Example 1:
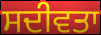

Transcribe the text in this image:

ਸਦੀਵਤਾ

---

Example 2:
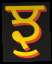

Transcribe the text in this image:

ਝੁ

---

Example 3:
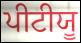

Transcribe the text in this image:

ਪੀਟੀਯੂ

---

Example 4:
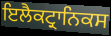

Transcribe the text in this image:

ਇਲੈਕਟ੍ਰਾਨਿਕਸ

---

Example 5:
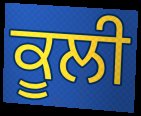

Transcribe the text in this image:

ਕੂਲੀ